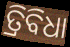
ତ୍ରିବିଧା